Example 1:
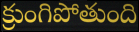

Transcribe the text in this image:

క్రుంగిపోతుంది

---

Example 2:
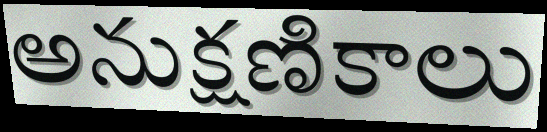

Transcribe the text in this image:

అనుక్షణికాలు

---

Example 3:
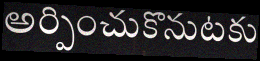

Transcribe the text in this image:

అర్పించుకొనుటకు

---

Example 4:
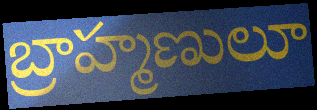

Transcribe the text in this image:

బ్రాహ్మణులూ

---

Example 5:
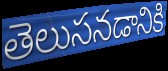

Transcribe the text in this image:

తెలుసనడానికి